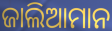
ଜାଲିଆମାନ